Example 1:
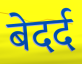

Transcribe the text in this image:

बेदर्द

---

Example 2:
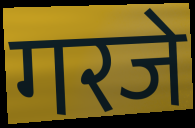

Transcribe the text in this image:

गरजे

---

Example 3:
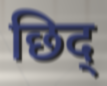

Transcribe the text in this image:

छिद्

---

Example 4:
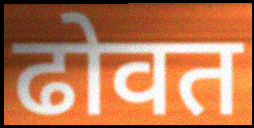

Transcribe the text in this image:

ढोवत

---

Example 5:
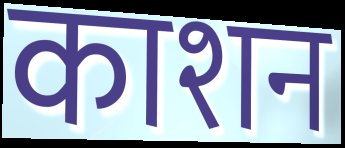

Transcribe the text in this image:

काशन